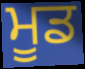
ਮੂਡ